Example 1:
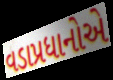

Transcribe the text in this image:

વડાપ્રધાનોએ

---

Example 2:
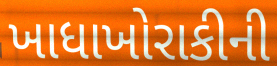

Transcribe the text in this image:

ખાધાખોરાકીની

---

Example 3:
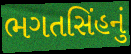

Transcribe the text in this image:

ભગતસિંહનું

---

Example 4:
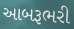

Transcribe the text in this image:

આબરૂભરી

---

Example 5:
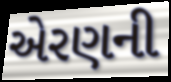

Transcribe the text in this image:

એરણની